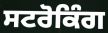
ਸਟਰੋਕਿੰਗ